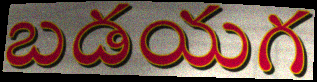
బడయగ